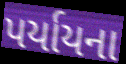
પર્યાયના